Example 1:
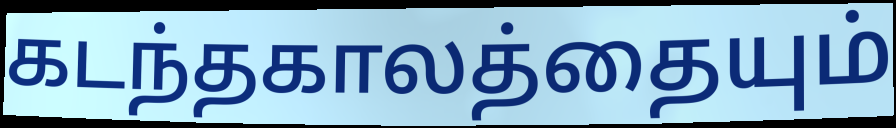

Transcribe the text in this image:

கடந்தகாலத்தையும்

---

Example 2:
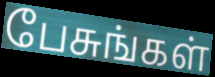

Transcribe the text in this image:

பேசுங்கள்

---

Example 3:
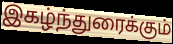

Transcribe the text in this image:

இகழ்ந்துரைக்கும்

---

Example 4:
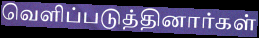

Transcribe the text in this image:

வெளிப்படுத்தினார்கள்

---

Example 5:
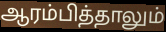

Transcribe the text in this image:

ஆரம்பித்தாலும்